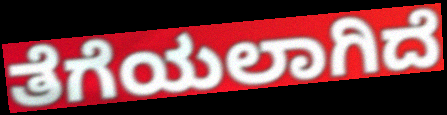
ತೆಗೆಯಲಾಗಿದೆ